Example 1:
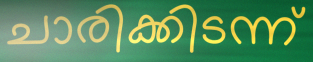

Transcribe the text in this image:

ചാരിക്കിടന്ന്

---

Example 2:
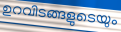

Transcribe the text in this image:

ഉറവിടങ്ങളുടെയും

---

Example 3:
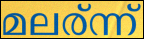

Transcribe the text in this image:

മലര്ന്ന്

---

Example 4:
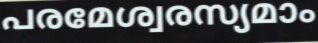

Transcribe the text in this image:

പരമേശ്വരസ്യമാം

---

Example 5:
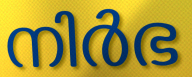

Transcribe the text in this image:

നിർഭ